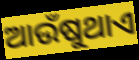
ଆଉଁଷୁଥାଏ